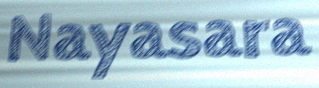
Nayasara